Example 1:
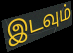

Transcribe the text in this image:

இடவும்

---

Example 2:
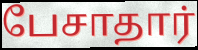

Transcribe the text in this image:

பேசாதார்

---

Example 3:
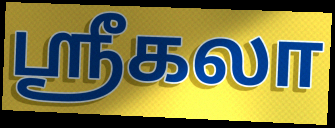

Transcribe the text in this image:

ஶ்ரீகலா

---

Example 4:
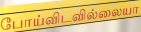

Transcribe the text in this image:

போய்விடவில்லையா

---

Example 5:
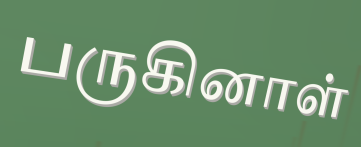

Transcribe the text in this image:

பருகினாள்